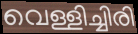
വെള്ളിച്ചിരി